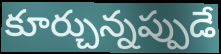
కూర్చున్నప్పుడే